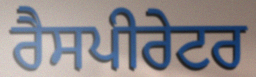
ਰੈਸਪੀਰੇਟਰ